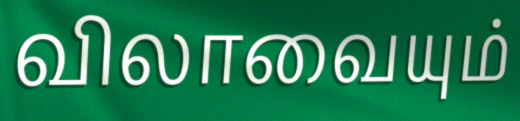
விலாவையும்